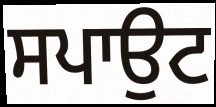
ਸਪਾਉਟ